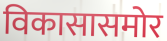
विकासासमोर